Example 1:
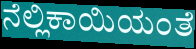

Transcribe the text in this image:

ನೆಲ್ಲಿಕಾಯಿಯಂತೆ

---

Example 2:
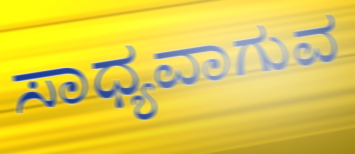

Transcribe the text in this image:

ಸಾಧ್ಯವಾಗುವ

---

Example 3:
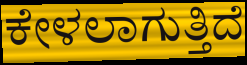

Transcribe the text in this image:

ಕೇಳಲಾಗುತ್ತಿದೆ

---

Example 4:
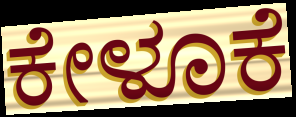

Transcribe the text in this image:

ಕೇಳೂಕೆ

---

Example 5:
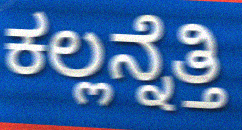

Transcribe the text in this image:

ಕಲ್ಲನ್ನೆತ್ತಿ